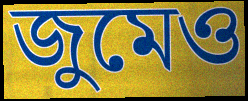
জুমেও